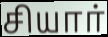
சியார்